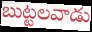
బుట్టలవాడు